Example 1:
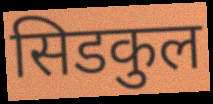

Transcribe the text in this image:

सिडकुल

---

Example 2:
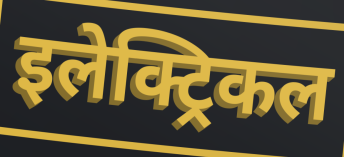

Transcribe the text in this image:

इलेक्ट्रिकल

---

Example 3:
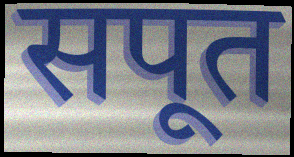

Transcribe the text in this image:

सपूत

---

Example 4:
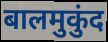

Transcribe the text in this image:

बालमुकुंद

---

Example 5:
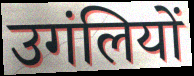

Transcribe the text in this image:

उगंलियों